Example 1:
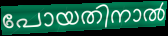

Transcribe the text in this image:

പോയതിനാൽ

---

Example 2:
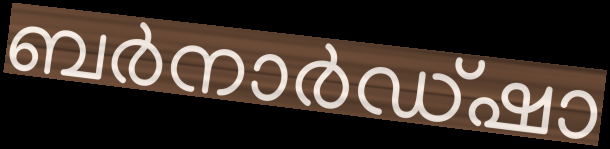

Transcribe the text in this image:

ബർനാർഡ്ഷാ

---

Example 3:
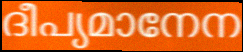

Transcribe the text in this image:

ദീപ്യമാനേന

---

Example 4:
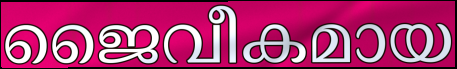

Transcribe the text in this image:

ജൈവീകമായ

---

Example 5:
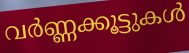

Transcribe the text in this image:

വർണ്ണക്കൂട്ടുകൾ